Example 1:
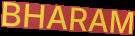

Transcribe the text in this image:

BHARAM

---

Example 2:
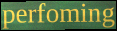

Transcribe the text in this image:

perfoming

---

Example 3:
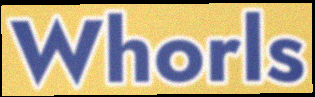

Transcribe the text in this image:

Whorls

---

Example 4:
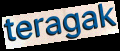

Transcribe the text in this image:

teragak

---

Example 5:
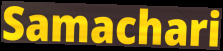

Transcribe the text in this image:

Samachari